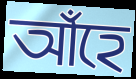
আঁহে